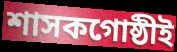
শাসকগোষ্ঠীই